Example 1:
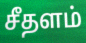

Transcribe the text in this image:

சீதளம்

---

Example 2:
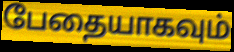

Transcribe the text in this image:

பேதையாகவும்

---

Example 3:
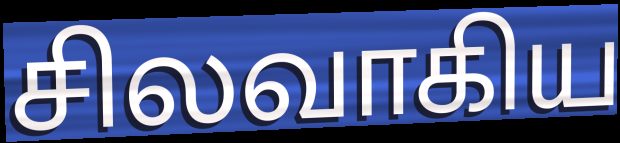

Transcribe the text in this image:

சிலவாகிய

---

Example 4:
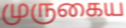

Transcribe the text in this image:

முருகைய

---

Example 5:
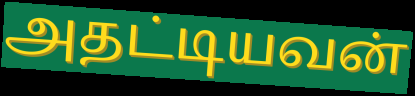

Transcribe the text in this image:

அதட்டியவன்